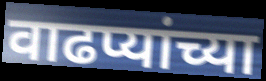
वाढप्यांच्या